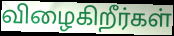
விழைகிறீர்கள்